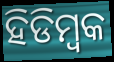
ହିଡିମ୍ବକ